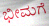
ಭೀಮಗೆ